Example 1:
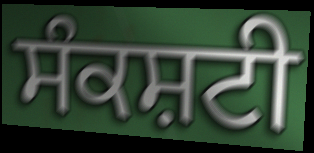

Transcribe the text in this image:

ਸੰਕਸ਼ਟੀ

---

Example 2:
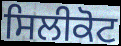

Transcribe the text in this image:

ਸਿਲੀਕੋਟ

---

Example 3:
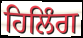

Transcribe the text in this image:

ਹਿਲਿੰਗ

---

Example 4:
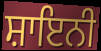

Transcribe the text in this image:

ਸ਼ਾਇਨੀ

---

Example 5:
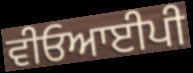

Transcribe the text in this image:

ਵੀਓਆਈਪੀ